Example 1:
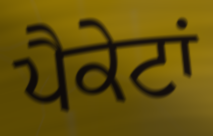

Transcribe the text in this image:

ਪੈਕੇਟਾਂ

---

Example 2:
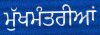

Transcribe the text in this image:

ਮੁੱਖਮੰਤਰੀਆਂ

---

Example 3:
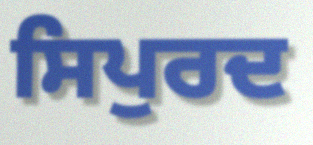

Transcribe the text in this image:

ਸਿਪੁਰਦ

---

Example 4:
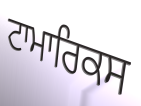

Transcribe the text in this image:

ਟਾਮਾਰਿਕਸ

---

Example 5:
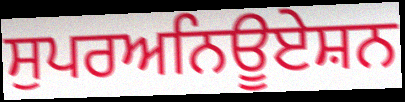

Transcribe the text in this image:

ਸੁਪਰਅਨਿਊਏਸ਼ਨ